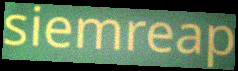
siemreap